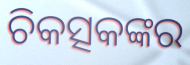
ଚିକତ୍ସକଙ୍କର